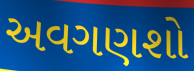
અવગણશો